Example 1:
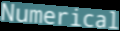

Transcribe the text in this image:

Numerical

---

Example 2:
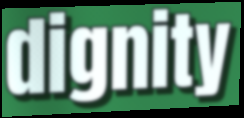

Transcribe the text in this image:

dignity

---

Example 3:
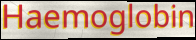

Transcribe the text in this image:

Haemoglobin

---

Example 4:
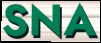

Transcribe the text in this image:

SNA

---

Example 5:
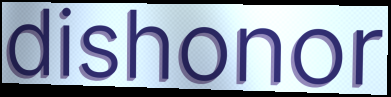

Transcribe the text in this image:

dishonor